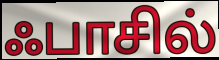
ஃபாசில்